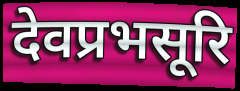
देवप्रभसूरि